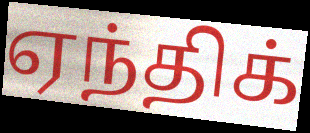
ஏந்திக்